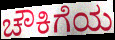
ಚೌಕಿಗೆಯ